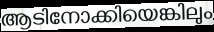
ആടിനോക്കിയെങ്കിലും